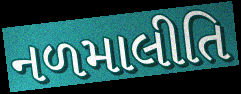
નળમાલીતિ